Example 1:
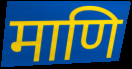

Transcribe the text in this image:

माणि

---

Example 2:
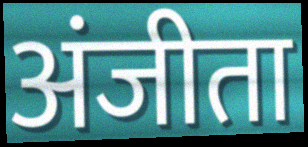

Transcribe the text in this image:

अंजीता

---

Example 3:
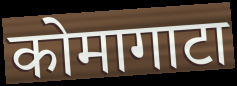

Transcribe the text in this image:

कोमागाटा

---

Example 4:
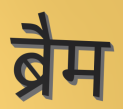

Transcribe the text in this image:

ब्रैम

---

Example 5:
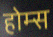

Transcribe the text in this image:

होम्स